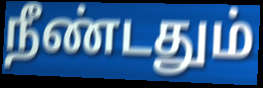
நீண்டதும்